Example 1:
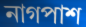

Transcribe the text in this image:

নাগপাশ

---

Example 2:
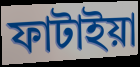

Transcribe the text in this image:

ফাটাইয়া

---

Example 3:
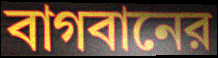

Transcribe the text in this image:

বাগবানের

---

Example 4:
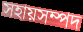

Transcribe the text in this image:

সহায়সম্পদ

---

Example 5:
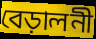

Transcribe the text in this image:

বেড়ালনী